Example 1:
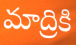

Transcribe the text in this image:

మాద్రికి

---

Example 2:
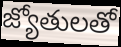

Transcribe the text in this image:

జ్యోతులతో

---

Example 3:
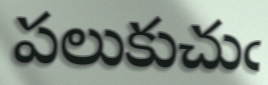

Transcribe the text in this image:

పలుకుచుఁ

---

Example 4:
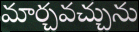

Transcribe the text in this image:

మార్చవచ్చును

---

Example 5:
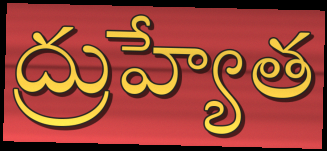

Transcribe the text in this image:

ద్రుహ్యేత